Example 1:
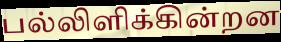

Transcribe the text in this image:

பல்லிளிக்கின்றன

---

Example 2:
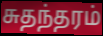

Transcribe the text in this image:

சுதந்தரம்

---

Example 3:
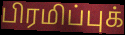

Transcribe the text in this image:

பிரமிப்புக்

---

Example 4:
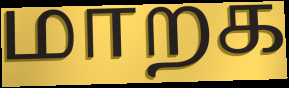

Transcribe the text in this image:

மாறக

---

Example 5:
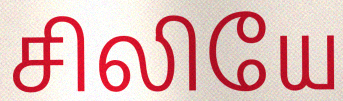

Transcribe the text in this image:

சிலியே